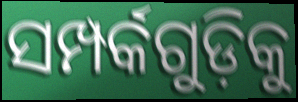
ସମ୍ପର୍କଗୁଡ଼ିକୁ